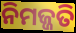
ନିମଜ୍ଜତି